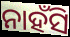
ନାହଁସି